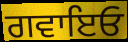
ਗਵਾਇਓ